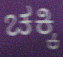
ಚಕ್ಕಿ